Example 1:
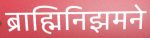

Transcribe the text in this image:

ब्राह्मिनिझमने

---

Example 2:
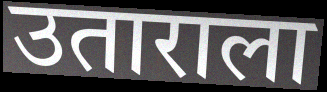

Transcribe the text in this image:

उताराला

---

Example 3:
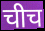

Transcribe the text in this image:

चीच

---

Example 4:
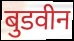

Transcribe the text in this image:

बुडवीन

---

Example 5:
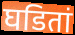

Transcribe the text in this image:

घडितां